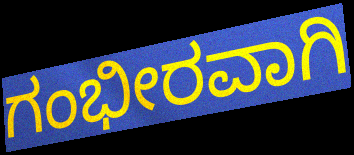
ಗಂಭೀರವಾಗಿ